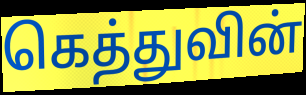
கெத்துவின்